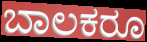
ಬಾಲಕರೂ